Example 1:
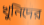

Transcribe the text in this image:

খুনিদের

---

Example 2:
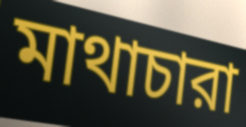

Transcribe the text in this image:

মাথাচারা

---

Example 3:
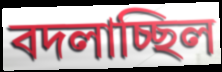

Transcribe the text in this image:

বদলাচ্ছিল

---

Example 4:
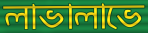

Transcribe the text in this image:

লাভালাভে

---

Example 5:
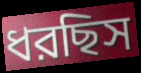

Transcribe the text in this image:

ধরছিস